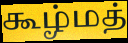
கூழ்மத்